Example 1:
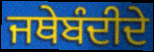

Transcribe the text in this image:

ਜਥੇਬੰਦੀਦੇ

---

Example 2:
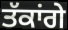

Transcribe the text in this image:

ਤੱਕਾਂਗੇ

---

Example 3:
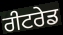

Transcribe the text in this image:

ਰੀਟਰੇਡ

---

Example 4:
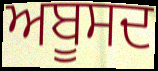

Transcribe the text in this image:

ਅਬੂਸਦ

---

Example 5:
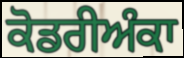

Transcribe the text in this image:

ਕੋਡਰੀਅੰਕਾ